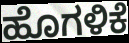
ಹೊಗಳಿಕೆ